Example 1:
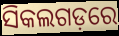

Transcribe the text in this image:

ସିକଲଗଡ଼ରେ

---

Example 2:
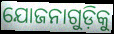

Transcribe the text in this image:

ଯୋଜନାଗୁଡ଼ିକୁ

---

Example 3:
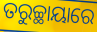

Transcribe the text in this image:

ତରୁଚ୍ଛାୟାରେ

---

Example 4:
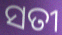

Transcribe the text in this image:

ସତୀ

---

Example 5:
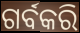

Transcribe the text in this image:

ଗର୍ବକରି